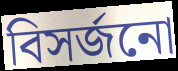
বিসৰ্জনো